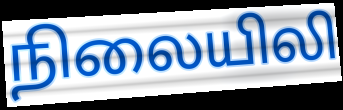
நிலையிலி